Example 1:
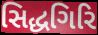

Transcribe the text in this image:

સિદ્ધગિરિ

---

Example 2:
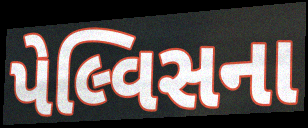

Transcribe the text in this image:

પેલ્વિસના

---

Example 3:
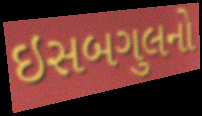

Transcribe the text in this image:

ઇસબગુલનો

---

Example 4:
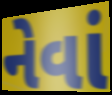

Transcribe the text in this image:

નેવાં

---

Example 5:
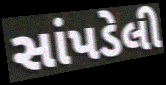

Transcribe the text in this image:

સાંપડેલી